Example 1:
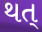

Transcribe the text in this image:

થત્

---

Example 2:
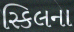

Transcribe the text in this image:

સ્કિલના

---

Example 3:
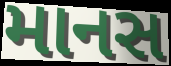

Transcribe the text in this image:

માનસ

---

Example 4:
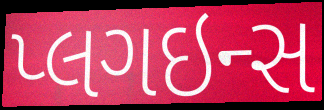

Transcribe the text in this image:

પ્લગઇન્સ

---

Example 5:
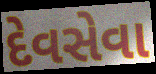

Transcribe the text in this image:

દેવસેવા